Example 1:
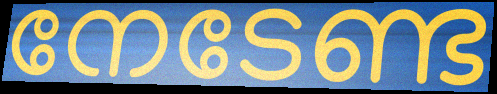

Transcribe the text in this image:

നേടേണ്ട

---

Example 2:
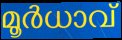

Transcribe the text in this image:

മൂർധാവ്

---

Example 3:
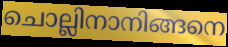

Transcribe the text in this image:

ചൊല്ലിനാനിങ്ങനെ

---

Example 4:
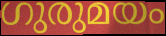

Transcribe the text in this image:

ഗുരുമയം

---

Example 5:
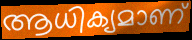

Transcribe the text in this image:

ആധിക്യമാണ്